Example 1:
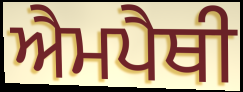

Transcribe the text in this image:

ਐਮਪੈਥੀ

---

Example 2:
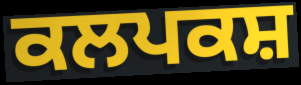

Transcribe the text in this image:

ਕਲਪਕਸ਼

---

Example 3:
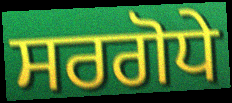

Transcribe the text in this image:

ਸਰਗੋਧੇ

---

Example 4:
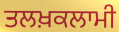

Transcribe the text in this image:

ਤਲਖ਼ਕਲਾਮੀ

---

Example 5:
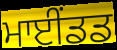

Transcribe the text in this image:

ਮਾਈਂਡਡ